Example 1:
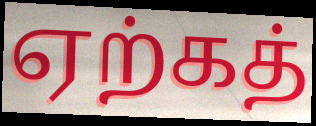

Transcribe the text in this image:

ஏற்கத்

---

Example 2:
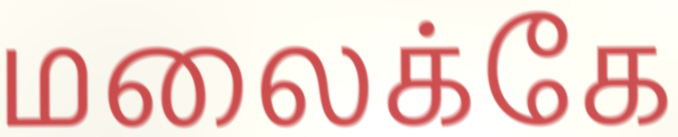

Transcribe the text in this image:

மலைக்கே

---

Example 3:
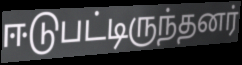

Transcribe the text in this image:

ஈடுபட்டிருந்தனர்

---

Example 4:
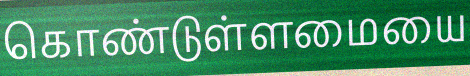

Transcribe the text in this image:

கொண்டுள்ளமையை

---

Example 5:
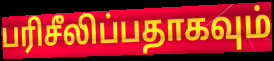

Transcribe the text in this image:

பரிசீலிப்பதாகவும்